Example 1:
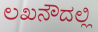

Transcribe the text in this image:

ಲಖನೌದಲ್ಲಿ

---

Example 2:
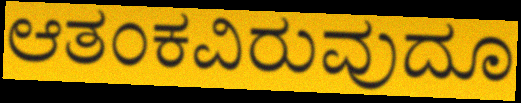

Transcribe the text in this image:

ಆತಂಕವಿರುವುದೂ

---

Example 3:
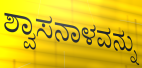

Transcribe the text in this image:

ಶ್ವಾಸನಾಳವನ್ನು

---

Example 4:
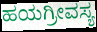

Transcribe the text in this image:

ಹಯಗ್ರೀವಸ್ಯ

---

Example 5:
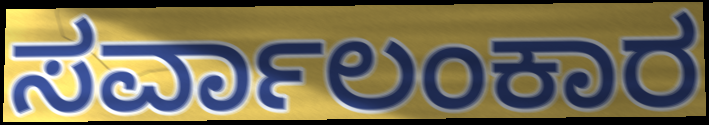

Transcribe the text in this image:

ಸರ್ವಾಲಂಕಾರ